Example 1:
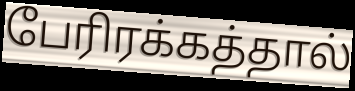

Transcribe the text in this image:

பேரிரக்கத்தால்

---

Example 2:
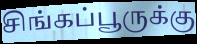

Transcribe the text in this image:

சிங்கப்பூருக்கு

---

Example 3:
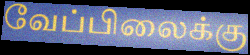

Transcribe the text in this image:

வேப்பிலைக்கு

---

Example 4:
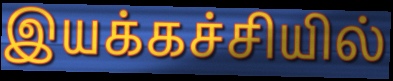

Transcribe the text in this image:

இயக்கச்சியில்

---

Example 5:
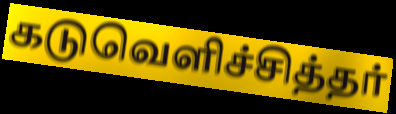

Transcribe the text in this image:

கடுவெளிச்சித்தர்